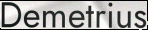
Demetrius